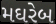
મઘરેબ